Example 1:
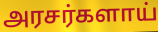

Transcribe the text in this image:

அரசர்களாய்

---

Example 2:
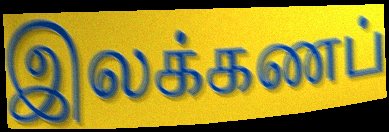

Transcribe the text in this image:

இலக்கணப்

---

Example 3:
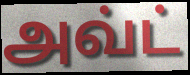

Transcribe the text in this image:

அவ்ட்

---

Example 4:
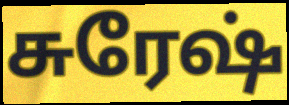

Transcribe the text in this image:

சுரேஷ்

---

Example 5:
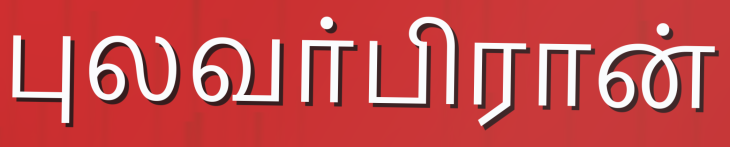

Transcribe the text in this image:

புலவர்பிரான்